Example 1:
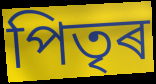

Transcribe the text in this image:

পিতৃৰ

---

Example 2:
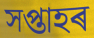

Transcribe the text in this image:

সপ্তাহৰ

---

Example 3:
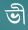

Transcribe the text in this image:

ভী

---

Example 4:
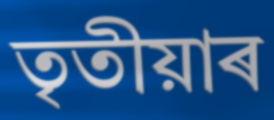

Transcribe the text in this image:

তৃতীয়াৰ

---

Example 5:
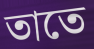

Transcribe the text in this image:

তাতে